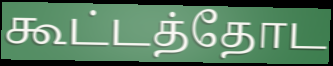
கூட்டத்தோட